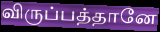
விருப்பத்தானே